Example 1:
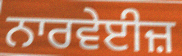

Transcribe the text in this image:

ਨਾਰਵੇਈਜ਼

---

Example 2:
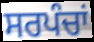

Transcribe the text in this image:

ਸਰਪੰਚਾਂ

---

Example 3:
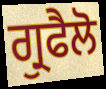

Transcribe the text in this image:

ਗ੍ਰੁਫੈਲੋ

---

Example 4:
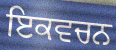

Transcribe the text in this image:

ਇਕਵਚਨ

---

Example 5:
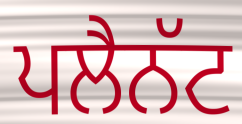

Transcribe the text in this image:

ਪਲੈਨੱਟ